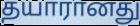
தயாரானது